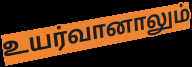
உயர்வானாலும்